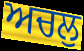
ਅਚਲੁ